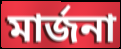
মার্জনা